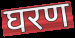
घरण